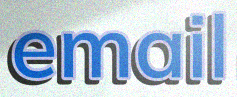
email